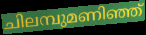
ചിലമ്പുമണിഞ്ഞ്